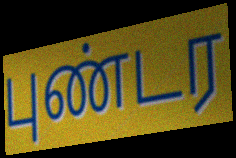
புண்டர